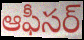
ఆఫీసర్